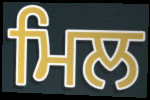
ਮਿਲ